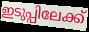
ഇടുപ്പിലേക്ക്